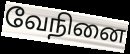
வேநினை